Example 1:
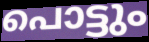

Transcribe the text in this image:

പൊട്ടും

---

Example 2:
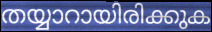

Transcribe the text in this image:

തയ്യാറായിരിക്കുക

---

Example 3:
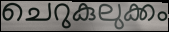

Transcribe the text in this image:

ചെറുകുലുക്കം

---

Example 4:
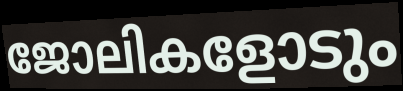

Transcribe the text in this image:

ജോലികളോടും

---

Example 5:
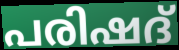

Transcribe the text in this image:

പരിഷദ്